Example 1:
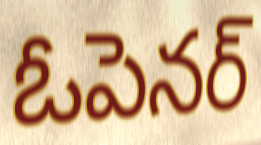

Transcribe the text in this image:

ఓపెనర్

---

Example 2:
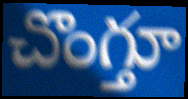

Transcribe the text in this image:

చొంగ్తూ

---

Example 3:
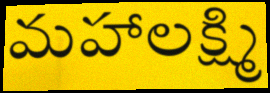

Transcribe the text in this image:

మహాలక్ష్మి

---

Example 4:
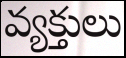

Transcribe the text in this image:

వ్యక్తులు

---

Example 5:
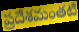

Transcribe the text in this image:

ప్రదేశమంతటి